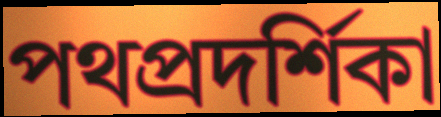
পথপ্রদর্শিকা